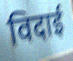
विदाई